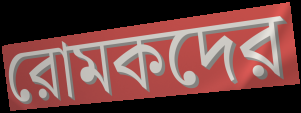
রোমকদের